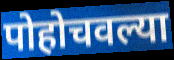
पोहोचवल्या